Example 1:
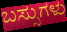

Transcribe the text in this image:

ಬಸ್ಸುಗಳು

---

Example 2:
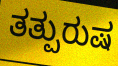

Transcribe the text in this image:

ತತ್ಪುರುಷ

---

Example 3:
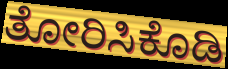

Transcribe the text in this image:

ತೋರಿಸಿಕೊಡಿ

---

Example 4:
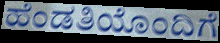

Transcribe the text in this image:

ಹೆಂಡತಿಯೊಂದಿಗೆ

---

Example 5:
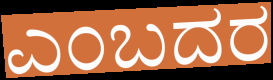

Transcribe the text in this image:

ಎಂಬದರ